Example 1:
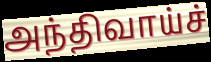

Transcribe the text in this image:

அந்திவாய்ச்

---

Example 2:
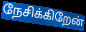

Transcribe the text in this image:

நேசிக்கிறேன்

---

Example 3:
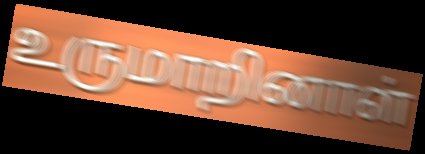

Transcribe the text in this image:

உருமாறினாள்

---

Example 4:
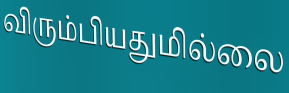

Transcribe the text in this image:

விரும்பியதுமில்லை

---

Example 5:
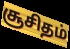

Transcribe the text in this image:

சூசிதம்